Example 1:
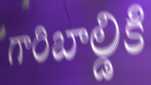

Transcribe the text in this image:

గారిబాల్డికి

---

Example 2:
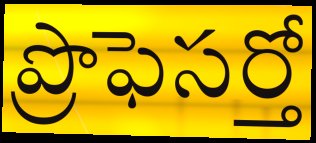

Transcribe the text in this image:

ప్రొఫెసర్తో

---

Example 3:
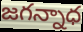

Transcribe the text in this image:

జగన్నాధ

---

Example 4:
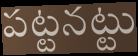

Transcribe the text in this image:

పట్టనట్టు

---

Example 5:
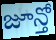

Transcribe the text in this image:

జూన్తో